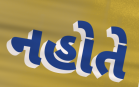
નહોતે